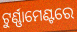
ଟୁର୍ଣ୍ଣାମେଣ୍ଟରେ